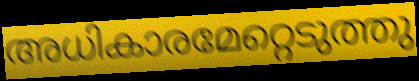
അധികാരമേറ്റെടുത്തു